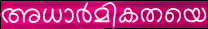
അധാർമികതയെ